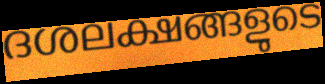
ദശലക്ഷങ്ങളുടെ